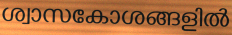
ശ്വാസകോശങ്ങളിൽ